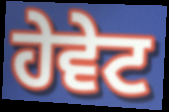
ਹੇਵੇਟ